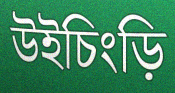
উইচিংড়ি